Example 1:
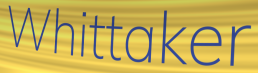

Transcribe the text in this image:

Whittaker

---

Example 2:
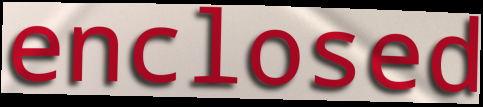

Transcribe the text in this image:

enclosed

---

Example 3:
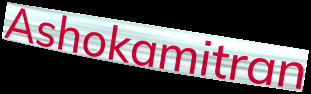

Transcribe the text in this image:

Ashokamitran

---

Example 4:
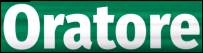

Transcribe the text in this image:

Oratore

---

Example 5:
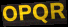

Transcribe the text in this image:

OPQR